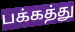
பக்கத்து